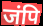
जंपि